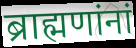
ब्राह्मणांनां